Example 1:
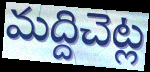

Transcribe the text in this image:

మద్దిచెట్ల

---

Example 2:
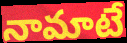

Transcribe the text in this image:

నామాటే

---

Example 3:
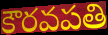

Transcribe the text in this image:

కౌరవపతి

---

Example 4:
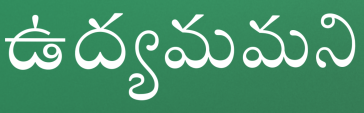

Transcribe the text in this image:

ఉద్యమమని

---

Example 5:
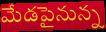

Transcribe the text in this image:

మేడపైనున్న